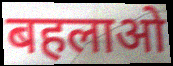
बहलाओ